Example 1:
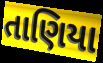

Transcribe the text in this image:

તાણિયા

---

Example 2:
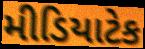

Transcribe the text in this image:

મીડિયાટેક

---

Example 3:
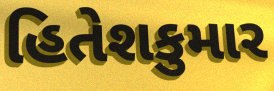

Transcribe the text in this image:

હિતેશકુમાર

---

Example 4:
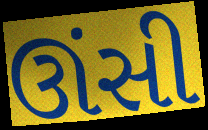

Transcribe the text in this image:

ઊંસી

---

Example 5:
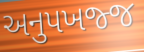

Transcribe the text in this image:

અનુપખજ્જ